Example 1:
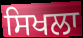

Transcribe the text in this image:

ਸਿਖਲਾ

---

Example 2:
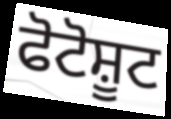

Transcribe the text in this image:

ਫੋਟੋਸ਼ੂਟ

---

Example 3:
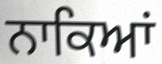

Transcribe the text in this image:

ਨਾਕਿਆਂ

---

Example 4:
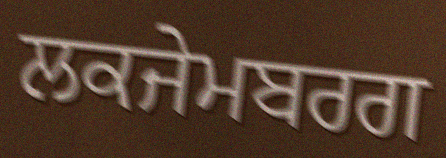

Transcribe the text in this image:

ਲਕਜੇਮਬਰਗ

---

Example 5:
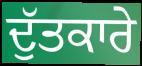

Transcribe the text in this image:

ਦੁੱਤਕਾਰੇ